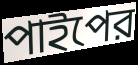
পাইপের